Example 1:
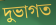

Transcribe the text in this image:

দুভাগত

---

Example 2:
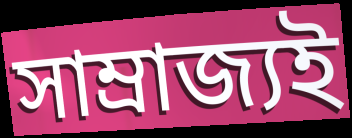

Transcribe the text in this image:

সাম্ৰাজ্যই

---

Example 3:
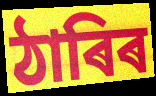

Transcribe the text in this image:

ঠাৰিৰ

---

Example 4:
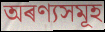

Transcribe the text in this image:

অৰণ্যসমূহ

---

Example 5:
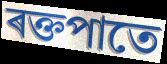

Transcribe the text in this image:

ৰক্তপাতে